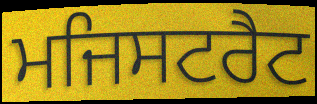
ਮਜਿਸਟਰੈਟ